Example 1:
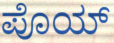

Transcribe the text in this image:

ಪೊಯ್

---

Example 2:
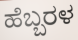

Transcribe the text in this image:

ಹೆಬ್ಬರಳ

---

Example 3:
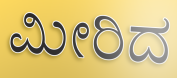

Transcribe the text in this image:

ಮೀರಿದ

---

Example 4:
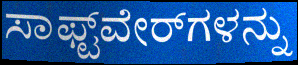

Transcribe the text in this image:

ಸಾಫ್ಟ್‌ವೇರ್‌ಗಳನ್ನು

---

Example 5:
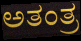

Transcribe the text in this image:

ಅತಂತ್ರ